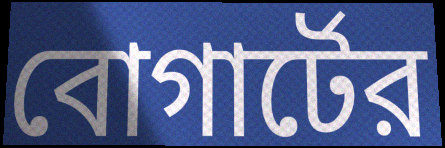
বোগার্টের